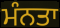
ਮੰਨਤਾ